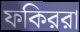
ফকিররা